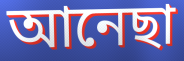
আনেছা